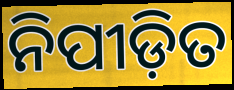
ନିପୀଡ଼ିତ